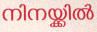
നിനയ്ക്കിൽ